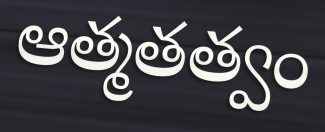
ఆత్మతత్వం